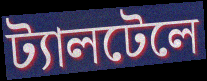
ট্যালটেলে